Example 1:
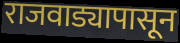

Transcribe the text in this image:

राजवाड्यापासून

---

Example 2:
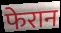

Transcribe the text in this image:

फेरान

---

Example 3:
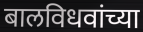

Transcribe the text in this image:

बालविधवांच्या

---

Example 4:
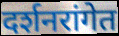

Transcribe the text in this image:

दर्शनरांगेत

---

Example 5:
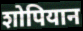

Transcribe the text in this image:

शोपियान